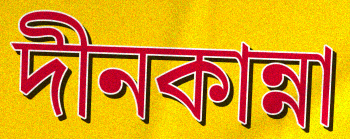
দীনকান্না